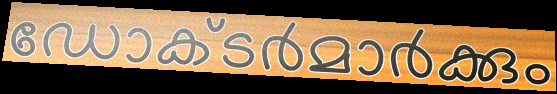
ഡോക്ടർമാർക്കും